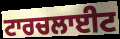
ਟਾਰਚਲਾਈਟ